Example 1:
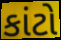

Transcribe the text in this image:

કાંટો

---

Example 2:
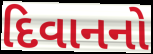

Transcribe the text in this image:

દિવાનનો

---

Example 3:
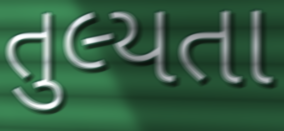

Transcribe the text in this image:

તુલ્યતા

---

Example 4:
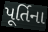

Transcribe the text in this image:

પૂર્તિના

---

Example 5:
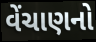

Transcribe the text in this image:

વેંચાણનો